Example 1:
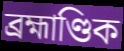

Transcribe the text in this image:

ব্ৰহ্মাণ্ডিক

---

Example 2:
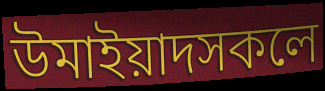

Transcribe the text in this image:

উমাইয়াদসকলে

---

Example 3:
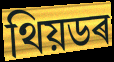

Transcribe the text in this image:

থিয়ডৰ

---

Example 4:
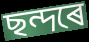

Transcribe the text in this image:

ছন্দৰে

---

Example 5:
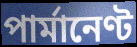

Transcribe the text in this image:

পাৰ্মানেণ্ট